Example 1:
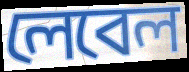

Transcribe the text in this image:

লেবেল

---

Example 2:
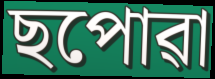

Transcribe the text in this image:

ছপোৱা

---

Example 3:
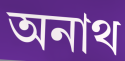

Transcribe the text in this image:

অনাথ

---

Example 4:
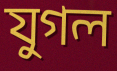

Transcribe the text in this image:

যুগল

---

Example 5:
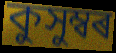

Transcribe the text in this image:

কুসুম্বৰ